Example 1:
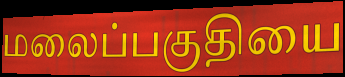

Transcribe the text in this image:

மலைப்பகுதியை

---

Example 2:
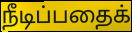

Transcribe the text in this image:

நீடிப்பதைக்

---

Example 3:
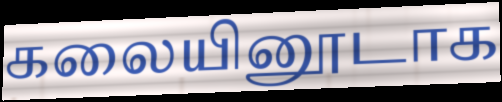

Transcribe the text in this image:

கலையினூடாக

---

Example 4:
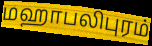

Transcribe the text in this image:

மஹாபலிபுரம்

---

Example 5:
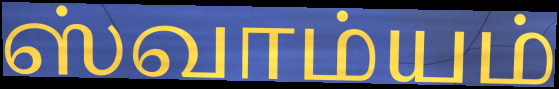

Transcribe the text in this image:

ஸ்வாம்யம்